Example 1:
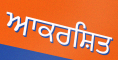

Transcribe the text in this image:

ਆਕਰਸ਼ਿਤ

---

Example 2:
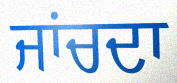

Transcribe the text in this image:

ਜਾਂਚਦਾ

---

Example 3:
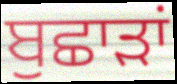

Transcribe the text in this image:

ਬੁਛਾੜਾਂ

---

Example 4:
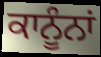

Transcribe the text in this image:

ਕਾਨੂੰਨਾਂ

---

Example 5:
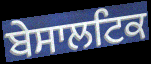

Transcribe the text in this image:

ਬੇਸਾਲਟਿਕ